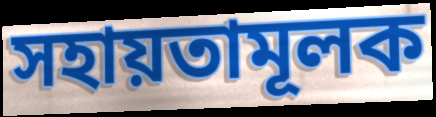
সহায়তামূলক